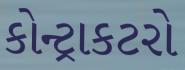
કોન્ટ્રાકટરો